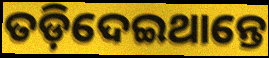
ତଡ଼ିଦେଇଥାନ୍ତେ